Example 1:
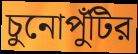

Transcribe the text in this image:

চুনোপুঁটির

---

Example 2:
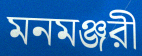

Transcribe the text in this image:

মনমঞ্জরী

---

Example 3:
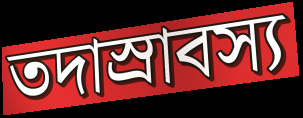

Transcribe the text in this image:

তদাস্রাবস্য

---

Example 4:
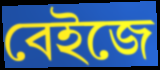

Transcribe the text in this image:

বেইজে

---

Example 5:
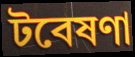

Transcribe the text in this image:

টবেষণা